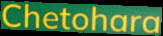
Chetohara